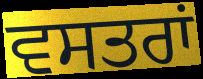
ਵਸਤਰਾਂ